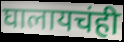
घालायचंही